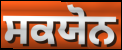
ਸਕਯੋਨ